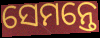
ସେମନ୍ତେ